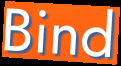
Bind